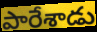
పారేశాడు